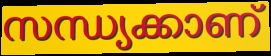
സന്ധ്യക്കാണ്